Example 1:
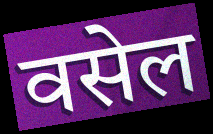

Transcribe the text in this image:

वसेल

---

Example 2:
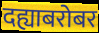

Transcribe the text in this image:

दह्याबरोबर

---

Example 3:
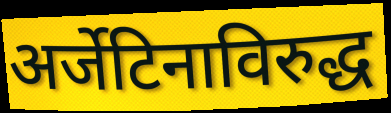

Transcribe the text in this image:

अर्जेटिनाविरुद्ध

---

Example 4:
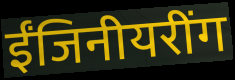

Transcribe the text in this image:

ईंजिनीयरींग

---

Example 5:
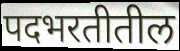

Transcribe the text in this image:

पदभरतीतील